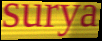
surya